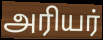
அரியர்